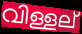
വിള്ളല്